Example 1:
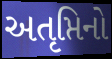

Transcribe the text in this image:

અતૃપ્તિનો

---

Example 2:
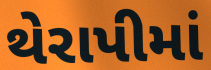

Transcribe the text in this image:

થેરાપીમાં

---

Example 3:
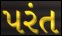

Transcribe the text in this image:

પરંત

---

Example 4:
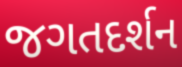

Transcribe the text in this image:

જગતદર્શન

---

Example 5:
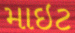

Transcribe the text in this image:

માઇટ